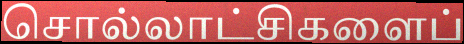
சொல்லாட்சிகளைப்